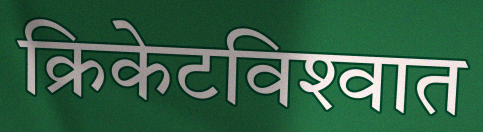
क्रिकेटविश्‍वात